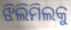
ଝିଲିମିଲକୁ